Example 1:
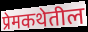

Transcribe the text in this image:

प्रेमकथेतील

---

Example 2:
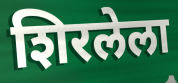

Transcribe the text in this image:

शिरलेला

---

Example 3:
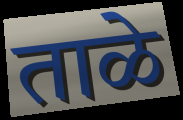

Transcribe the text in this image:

ताळे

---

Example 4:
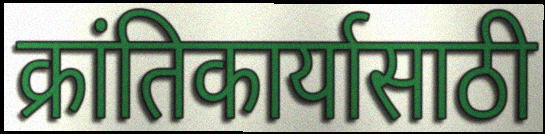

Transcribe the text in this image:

क्रांतिकार्यासाठी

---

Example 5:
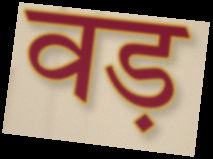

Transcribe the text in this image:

वड़